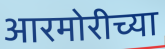
आरमोरीच्या